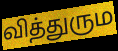
வித்துரும